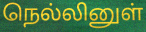
நெல்லினுள்